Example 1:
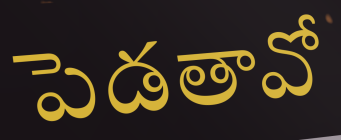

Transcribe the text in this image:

పెడతావో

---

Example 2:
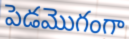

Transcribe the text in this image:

పెడమొగంగా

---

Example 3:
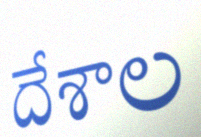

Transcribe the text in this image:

దేశాల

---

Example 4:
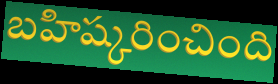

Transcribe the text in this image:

బహిష్కరించింది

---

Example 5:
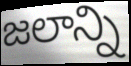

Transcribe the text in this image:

జలాన్ని